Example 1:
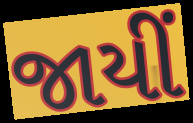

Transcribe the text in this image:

જાયીં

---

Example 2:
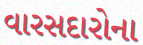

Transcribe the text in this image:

વારસદારોના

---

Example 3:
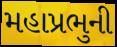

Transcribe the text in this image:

મહાપ્રભુની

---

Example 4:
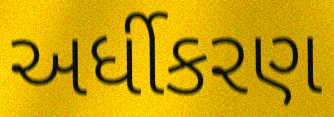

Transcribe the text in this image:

અર્ધીકરણ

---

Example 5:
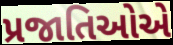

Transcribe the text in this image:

પ્રજાતિઓએ